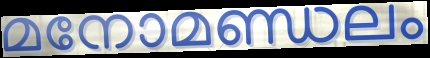
മനോമണ്ഡലം